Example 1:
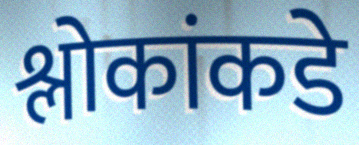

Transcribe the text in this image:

श्लोकांकडे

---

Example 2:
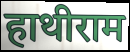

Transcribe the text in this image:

हाथीराम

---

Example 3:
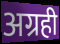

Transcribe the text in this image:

अग्रही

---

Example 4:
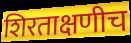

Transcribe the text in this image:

शिरताक्षणीच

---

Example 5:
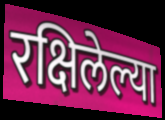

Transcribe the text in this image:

रक्षिलेल्या